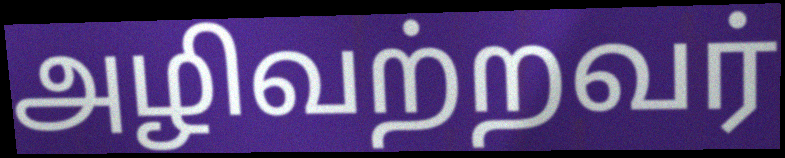
அழிவற்றவர்